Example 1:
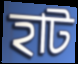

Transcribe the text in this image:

হাট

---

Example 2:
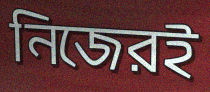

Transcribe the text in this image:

নিজেরই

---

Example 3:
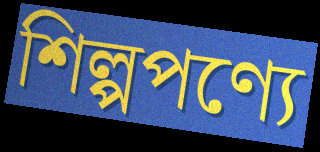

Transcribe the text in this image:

শিল্পপণ্যে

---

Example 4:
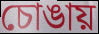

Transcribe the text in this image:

চোঙায়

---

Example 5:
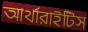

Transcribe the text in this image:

আর্থারাইটিস